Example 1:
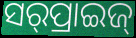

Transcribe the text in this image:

ସର୍‌ପ୍ରାଇଜ୍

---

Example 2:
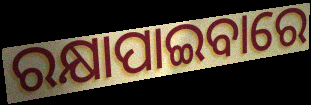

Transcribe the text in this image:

ରକ୍ଷାପାଇବାରେ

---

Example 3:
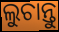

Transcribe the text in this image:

ଲୁଚାନ୍ତୁ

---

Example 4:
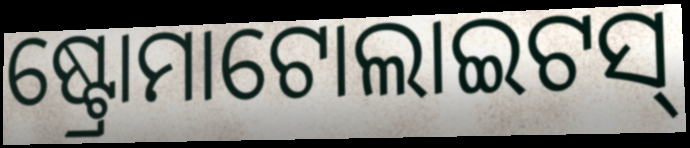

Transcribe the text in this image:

ଷ୍ଟ୍ରୋମାଟୋଲାଇଟସ୍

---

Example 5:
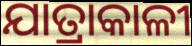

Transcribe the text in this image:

ଯାତ୍ରାକାଳୀ